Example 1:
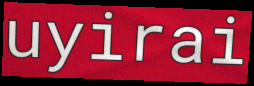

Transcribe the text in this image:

uyirai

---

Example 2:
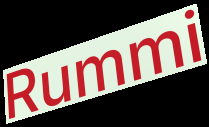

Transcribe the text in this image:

Rummi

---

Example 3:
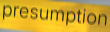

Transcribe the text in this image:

presumption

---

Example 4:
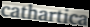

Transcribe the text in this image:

cathartica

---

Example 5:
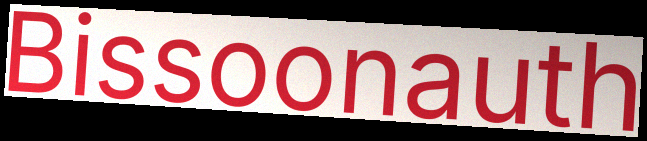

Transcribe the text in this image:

Bissoonauth